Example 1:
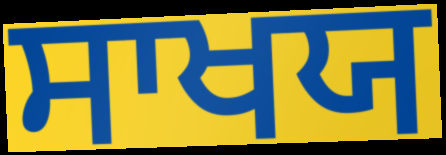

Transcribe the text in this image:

ਸਾਖਯ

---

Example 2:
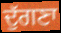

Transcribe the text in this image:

ਦੁੱਗਣਾ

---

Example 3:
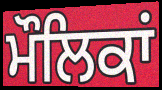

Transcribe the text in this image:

ਮੌਲਿਕਾਂ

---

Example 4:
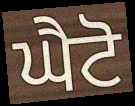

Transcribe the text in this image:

ਘੈਟੋ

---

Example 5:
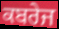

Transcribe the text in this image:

ਕਬਰੇਜ